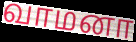
வாமனா